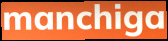
manchiga